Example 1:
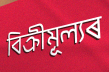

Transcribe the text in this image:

বিক্ৰীমূল্যৰ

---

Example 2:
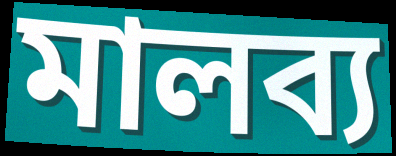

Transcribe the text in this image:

মালব্য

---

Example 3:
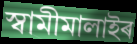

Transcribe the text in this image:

স্বামীমালাইৰ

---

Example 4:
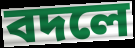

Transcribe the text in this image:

বদলে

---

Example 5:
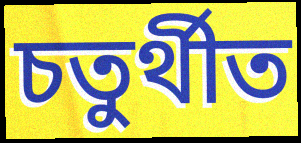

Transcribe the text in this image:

চতুৰ্থীত